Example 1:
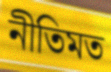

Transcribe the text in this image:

নীতিমত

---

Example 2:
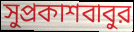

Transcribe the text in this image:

সুপ্রকাশবাবুর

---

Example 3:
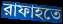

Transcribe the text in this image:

রাফাহতে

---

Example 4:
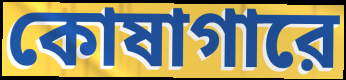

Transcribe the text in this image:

কোষাগারে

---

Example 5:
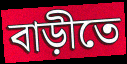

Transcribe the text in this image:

বাড়ীতে